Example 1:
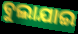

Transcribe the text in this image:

ବୁଲାଯାଇ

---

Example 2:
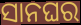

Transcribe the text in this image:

ସାନଘର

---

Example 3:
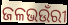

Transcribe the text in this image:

ଜଳଭଉଁରୀ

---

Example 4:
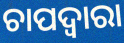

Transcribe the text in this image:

ଚାପଦ୍ବାରା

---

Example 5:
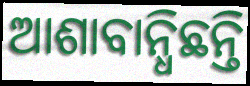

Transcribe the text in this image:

ଆଶାବାନ୍ଧିଛନ୍ତି